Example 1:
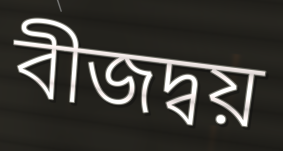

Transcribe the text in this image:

বীজদ্বয়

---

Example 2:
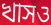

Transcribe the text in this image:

খাসও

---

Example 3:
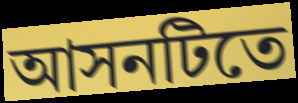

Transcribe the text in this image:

আসনটিতে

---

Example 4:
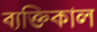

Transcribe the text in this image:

ব্যক্তিকাল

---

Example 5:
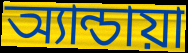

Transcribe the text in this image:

অ্যান্ডায়া